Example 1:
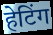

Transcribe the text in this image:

हेटिंग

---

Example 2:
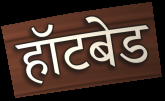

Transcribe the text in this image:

हॉटबेड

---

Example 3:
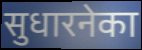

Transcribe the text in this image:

सुधारनेका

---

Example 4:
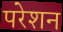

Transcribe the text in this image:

परेशन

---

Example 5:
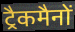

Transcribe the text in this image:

ट्रैकमैनों